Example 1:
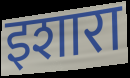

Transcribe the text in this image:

इशारा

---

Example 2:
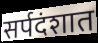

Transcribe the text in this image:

सर्पदंशात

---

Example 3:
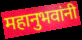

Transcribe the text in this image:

महानुभवांनी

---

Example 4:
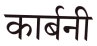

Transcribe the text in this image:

कार्बनी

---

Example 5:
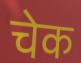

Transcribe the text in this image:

चेक